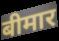
बीमार